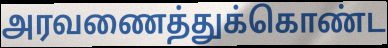
அரவணைத்துக்கொண்ட